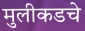
मुलीकडचे